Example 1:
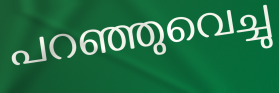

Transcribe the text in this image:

പറഞ്ഞുവെച്ചു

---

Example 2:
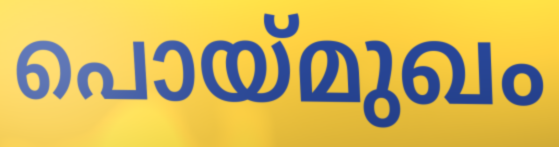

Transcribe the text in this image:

പൊയ്മുഖം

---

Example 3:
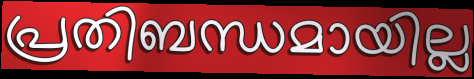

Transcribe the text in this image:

പ്രതിബന്ധമായില്ല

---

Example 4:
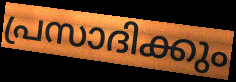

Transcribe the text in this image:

പ്രസാദിക്കും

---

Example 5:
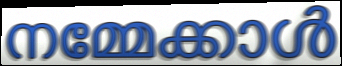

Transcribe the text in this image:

നമ്മേക്കാൾ